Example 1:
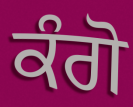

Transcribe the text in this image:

ਕੰਗੋ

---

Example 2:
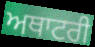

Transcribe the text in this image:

ਅਥਾਟਰੀ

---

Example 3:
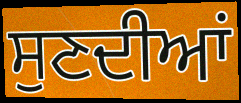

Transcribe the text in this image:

ਸੁਣਦੀਆਂ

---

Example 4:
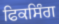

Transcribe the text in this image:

ਫਿਕਸਿੰਗ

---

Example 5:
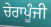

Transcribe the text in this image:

ਚੇਰਾਪੂੰਜੀ